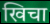
खिचा